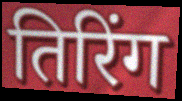
तिरिंग